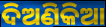
ଦିଅଣିକିଆ